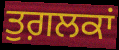
ਤੁਗ਼ਲਕਾਂ